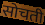
सोचती